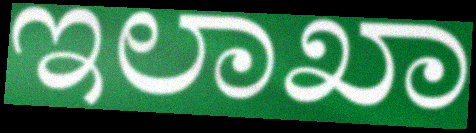
ಇಲಾಖಾ